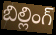
బిల్లింగ్